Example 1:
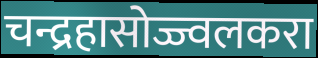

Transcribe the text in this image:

चन्द्रहासोज्ज्वलकरा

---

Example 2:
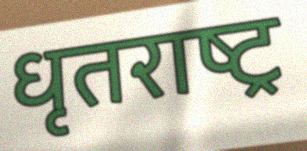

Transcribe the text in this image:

धृतराष्ट्र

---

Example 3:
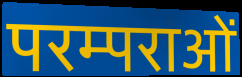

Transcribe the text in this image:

परम्पराओं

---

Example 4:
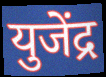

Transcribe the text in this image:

युजेंद्र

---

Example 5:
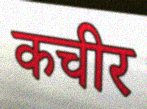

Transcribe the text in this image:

कचीर